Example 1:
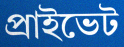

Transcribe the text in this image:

প্ৰাইভেট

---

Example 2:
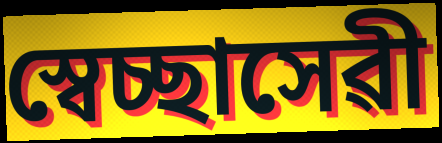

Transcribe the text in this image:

স্বেচ্ছাসেৱী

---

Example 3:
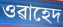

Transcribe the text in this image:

ওৱাহেদ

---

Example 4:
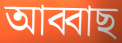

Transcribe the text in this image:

আব্বাছ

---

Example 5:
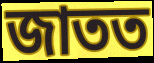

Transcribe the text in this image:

জাতত